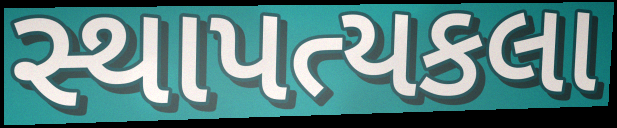
સ્થાપત્યકલા